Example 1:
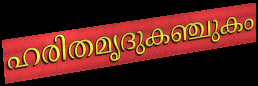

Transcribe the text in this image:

ഹരിതമൃദുകഞ്ചുകം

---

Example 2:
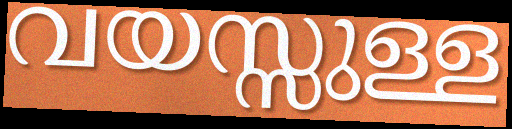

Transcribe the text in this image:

വയസ്സുള്ള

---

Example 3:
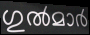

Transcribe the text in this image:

ഗുൽമാർ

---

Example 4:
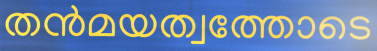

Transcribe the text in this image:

തൻമയത്വത്തോടെ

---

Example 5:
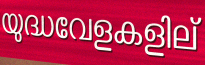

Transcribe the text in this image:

യുദ്ധവേളകളില്